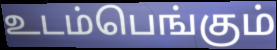
உடம்பெங்கும்